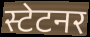
स्टेटनर